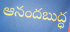
ఆనందబుద్ధ